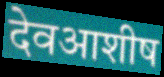
देवआशीष